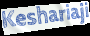
Keshariaji